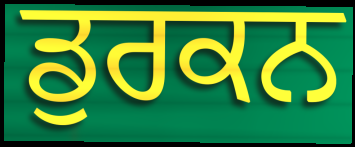
ਡੁਰਕਨ